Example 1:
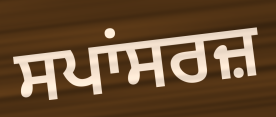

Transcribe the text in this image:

ਸਪਾਂਸਰਜ਼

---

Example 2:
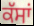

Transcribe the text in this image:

ਕੱਸਾਂ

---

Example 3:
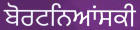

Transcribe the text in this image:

ਬੋਰਟਨਿਆਂਸਕੀ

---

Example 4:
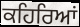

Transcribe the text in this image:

ਕਹਿਰਿਆਂ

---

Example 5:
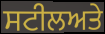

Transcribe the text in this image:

ਸਟੀਲਅਤੇ